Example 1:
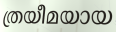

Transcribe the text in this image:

ത്രയീമയായ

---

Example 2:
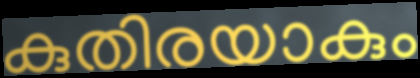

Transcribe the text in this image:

കുതിരയാകും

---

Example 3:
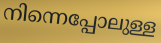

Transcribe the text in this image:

നിന്നെപ്പോലുള്ള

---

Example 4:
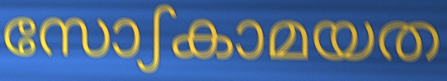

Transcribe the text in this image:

സോഽകാമയത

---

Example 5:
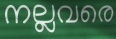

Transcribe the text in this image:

നല്ലവരെ